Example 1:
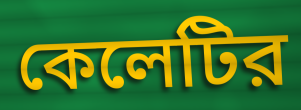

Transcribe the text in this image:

কেলেটির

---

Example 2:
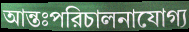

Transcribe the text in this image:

আন্তঃপরিচালনাযোগ্য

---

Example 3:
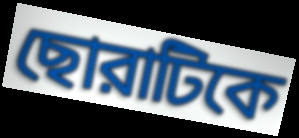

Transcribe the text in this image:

ছোরাটিকে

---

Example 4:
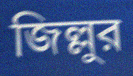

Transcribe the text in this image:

জিল্লুর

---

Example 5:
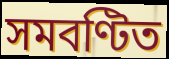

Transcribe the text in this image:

সমবণ্টিত